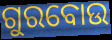
ଗୁରବୋଉ